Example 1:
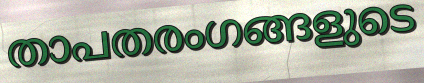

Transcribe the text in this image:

താപതരംഗങ്ങളുടെ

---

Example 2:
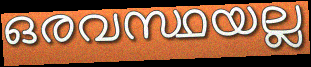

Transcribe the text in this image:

ഒരവസ്ഥയല്ല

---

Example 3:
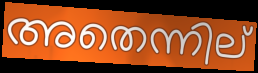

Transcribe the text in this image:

അതെന്നില്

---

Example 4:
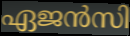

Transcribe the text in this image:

ഏജൻസി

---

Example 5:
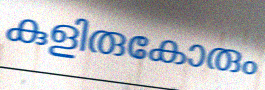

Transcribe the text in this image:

കുളിരുകോരും